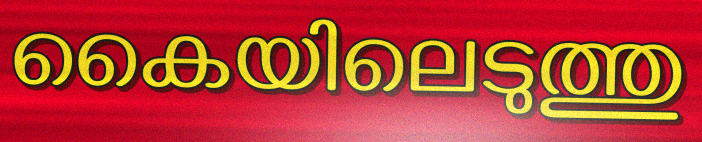
കൈയിലെടുത്തു